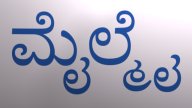
ಮೈಲ್ಮೈ